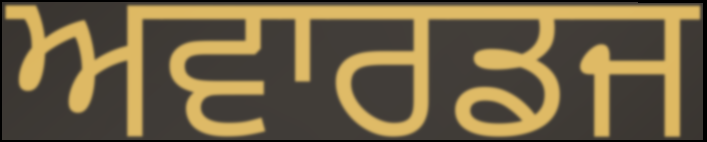
ਅਵਾਰਡਜ